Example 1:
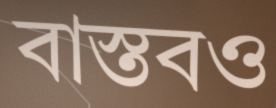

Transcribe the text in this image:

বাস্তবও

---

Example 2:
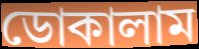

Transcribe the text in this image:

ডোকালাম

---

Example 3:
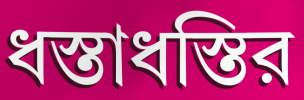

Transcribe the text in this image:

ধস্তাধস্তির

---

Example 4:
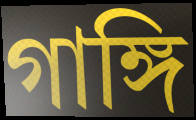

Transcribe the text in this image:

গাঙ্গি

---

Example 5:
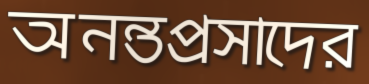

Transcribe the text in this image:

অনন্তপ্রসাদের